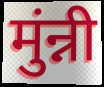
मुंन्नी